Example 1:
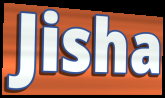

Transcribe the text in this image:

Jisha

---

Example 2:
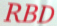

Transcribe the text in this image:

RBD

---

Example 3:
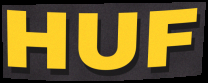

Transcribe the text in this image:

HUF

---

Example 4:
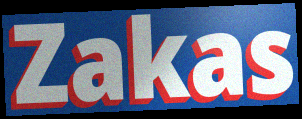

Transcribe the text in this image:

Zakas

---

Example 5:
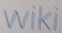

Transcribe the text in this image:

wiki